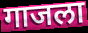
गाजला